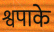
श्वपाके